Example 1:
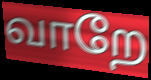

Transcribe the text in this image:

வாறே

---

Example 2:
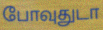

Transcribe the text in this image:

போவுதுடா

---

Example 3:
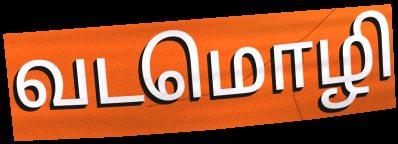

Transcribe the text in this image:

வடமொழி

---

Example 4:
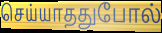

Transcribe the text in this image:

செய்யாததுபோல்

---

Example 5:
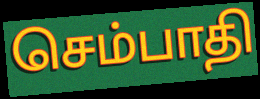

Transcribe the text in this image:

செம்பாதி